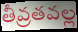
తీవ్రతవల్ల